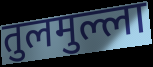
तुलमुल्ला